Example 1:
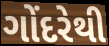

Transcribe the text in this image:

ગોંદરેથી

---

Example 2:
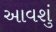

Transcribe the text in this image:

આવશું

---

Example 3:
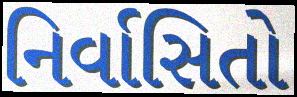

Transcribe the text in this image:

નિર્વાસિતો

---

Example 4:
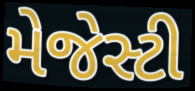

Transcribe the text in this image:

મેજેસ્ટી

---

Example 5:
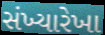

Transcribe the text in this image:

સંખ્યારેખા